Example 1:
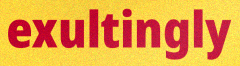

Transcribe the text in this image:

exultingly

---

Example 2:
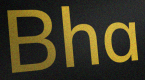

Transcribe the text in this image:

Bha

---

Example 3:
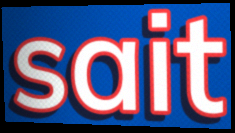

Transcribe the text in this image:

sait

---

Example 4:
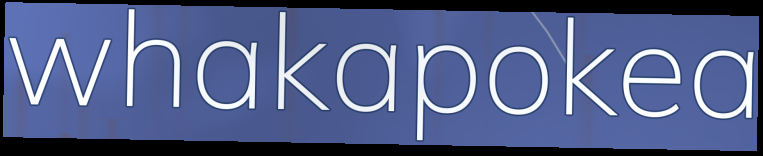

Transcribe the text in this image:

whakapokea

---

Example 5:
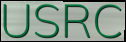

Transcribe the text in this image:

USRC